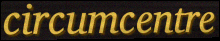
circumcentre